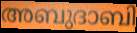
അബുദാബി